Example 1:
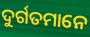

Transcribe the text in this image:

ଦୁର୍ଗତମାନେ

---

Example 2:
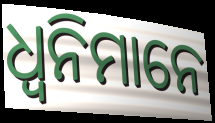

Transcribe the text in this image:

ଧ୍ୱନିମାନେ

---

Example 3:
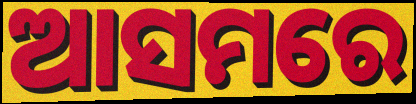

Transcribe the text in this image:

ଆସମରେ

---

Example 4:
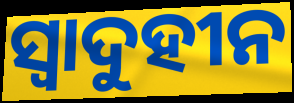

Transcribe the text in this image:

ସ୍ୱାଦୁହୀନ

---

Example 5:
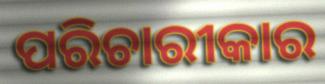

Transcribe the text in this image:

ପରିଚାରୀକାର